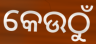
କେଉଠୁଁ